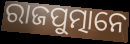
ରାଜପୁତ୍ମାନେ